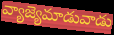
వ్యాజ్యెమాడువాడు